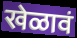
खेळावं